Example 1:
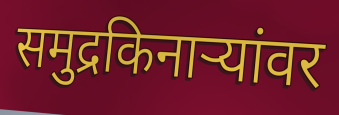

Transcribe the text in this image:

समुद्रकिनाऱ्यांवर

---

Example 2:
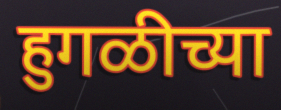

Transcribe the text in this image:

हुगळीच्या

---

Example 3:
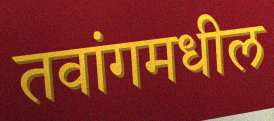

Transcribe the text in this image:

तवांगमधील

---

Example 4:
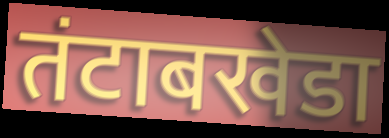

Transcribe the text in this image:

तंटाबखेडा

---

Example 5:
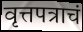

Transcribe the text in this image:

वृत्तपत्राचं